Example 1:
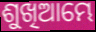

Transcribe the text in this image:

ଶୁଖିଆମ୍ଭେ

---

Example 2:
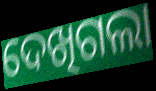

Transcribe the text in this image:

ଦେଖିଗଲା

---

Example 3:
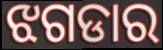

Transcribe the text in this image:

ଝଗଡାର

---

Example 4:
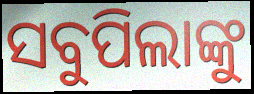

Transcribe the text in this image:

ସବୁପିଲାଙ୍କୁ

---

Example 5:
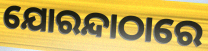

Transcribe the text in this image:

ଯୋରନ୍ଦାଠାରେ